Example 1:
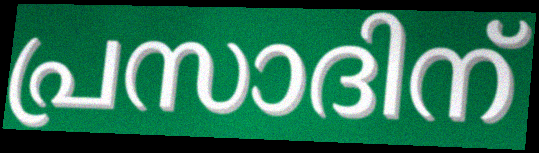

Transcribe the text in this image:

പ്രസാദിന്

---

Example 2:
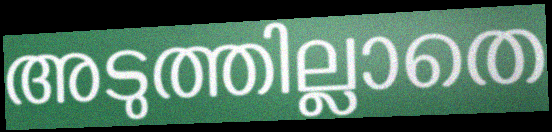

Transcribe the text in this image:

അടുത്തില്ലാതെ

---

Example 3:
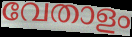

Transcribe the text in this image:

വേതാളം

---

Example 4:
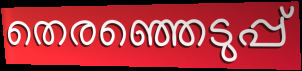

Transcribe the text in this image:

തെരഞ്ഞെടുപ്പ്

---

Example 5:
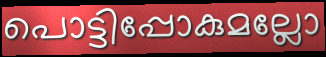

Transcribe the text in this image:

പൊട്ടിപ്പോകുമല്ലോ